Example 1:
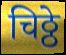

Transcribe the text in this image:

चिठ्ठे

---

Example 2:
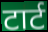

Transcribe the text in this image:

टार्ट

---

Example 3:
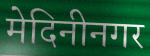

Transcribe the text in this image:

मेदिनीनगर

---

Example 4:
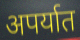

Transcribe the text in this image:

अपर्यात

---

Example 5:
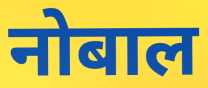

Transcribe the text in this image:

नोबाल